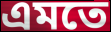
এমতে